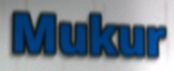
Mukur